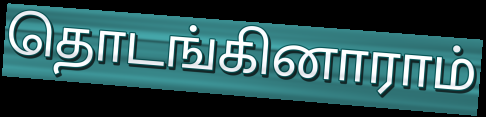
தொடங்கினாராம்